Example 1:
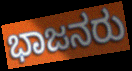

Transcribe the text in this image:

ಭಾಜನರು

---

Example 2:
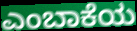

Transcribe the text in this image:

ಎಂಬಾಕೆಯ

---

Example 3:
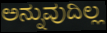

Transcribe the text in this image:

ಅನ್ನುವುದಿಲ್ಲ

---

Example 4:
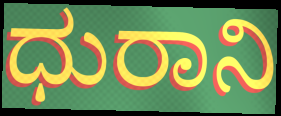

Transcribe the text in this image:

ಧುರಾನಿ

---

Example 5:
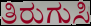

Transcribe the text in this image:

ತಿರುಗುಸಿ